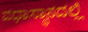
ವಧಾಸ್ಥಾನದಲ್ಲಿ